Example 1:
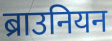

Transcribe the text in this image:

ब्राउनियन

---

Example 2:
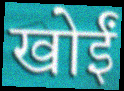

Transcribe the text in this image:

खोईं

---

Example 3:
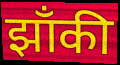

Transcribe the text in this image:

झाँकी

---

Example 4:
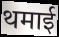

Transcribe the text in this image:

थमाई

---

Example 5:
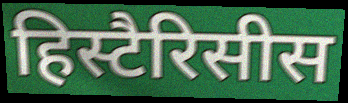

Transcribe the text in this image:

हिस्टैरिसीस